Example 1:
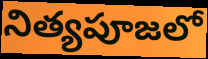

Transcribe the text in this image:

నిత్యపూజలో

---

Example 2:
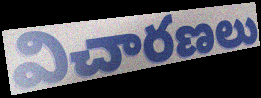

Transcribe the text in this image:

విచారణలు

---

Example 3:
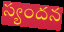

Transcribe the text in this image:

స్యందన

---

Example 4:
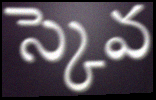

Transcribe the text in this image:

స్కెవ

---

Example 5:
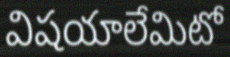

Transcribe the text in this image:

విషయాలేమిటో